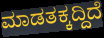
ಮಾಡತಕ್ಕದ್ದಿದೆ